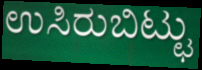
ಉಸಿರುಬಿಟ್ಟು